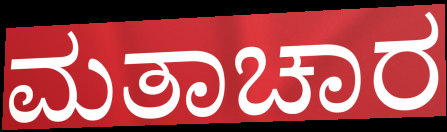
ಮತಾಚಾರ